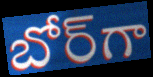
బోర్‌గా